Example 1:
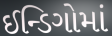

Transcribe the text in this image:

ઈન્ડિગોમાં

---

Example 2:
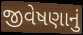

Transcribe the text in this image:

જીવેષણાનું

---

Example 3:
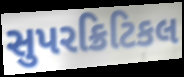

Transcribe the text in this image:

સુપરક્રિટિકલ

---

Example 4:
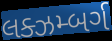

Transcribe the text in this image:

લક્ઝમ્બર્ગ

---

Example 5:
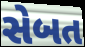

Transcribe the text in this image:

સેબત